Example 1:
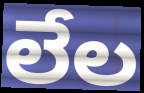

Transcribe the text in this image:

లేల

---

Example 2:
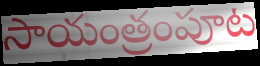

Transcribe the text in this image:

సాయంత్రంపూట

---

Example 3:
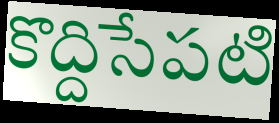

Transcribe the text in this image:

కొద్దిసేపటి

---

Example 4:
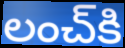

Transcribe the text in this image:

లంచ్‌కి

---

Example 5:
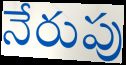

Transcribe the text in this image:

నేరుపు